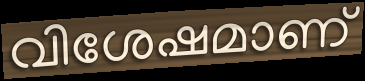
വിശേഷമാണ്